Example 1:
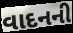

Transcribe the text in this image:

વાદનની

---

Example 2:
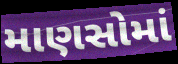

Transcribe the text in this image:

માણસોમાં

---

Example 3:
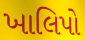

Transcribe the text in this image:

ખાલિપો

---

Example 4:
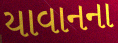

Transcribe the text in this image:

યાવાનના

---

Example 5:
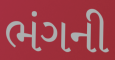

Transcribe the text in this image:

ભંગની